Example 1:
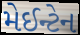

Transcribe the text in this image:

મેઈન્ટેન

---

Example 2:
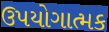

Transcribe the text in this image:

ઉપયોગાત્મક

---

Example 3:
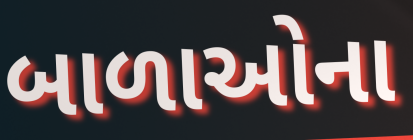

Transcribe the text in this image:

બાળાઓના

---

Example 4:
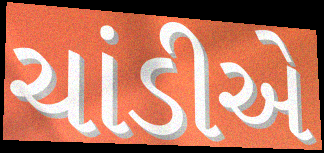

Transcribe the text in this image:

ચાંડીએ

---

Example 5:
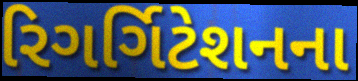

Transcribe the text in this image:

રિગર્ગિટેશનના